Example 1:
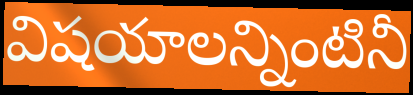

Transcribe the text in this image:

విషయాలన్నింటినీ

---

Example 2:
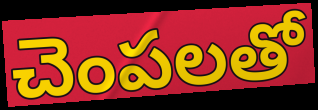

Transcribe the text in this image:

చెంపలతో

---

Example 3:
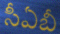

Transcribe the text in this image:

సీఏబీ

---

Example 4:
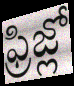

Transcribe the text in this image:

ఫ్రిజ్లో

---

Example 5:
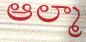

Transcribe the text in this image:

ఆల్మా